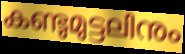
കണ്ടുമുട്ടലിനും